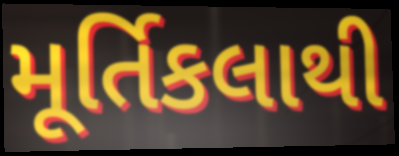
મૂર્તિકલાથી